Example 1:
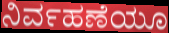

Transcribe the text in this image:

ನಿರ್ವಹಣೆಯೂ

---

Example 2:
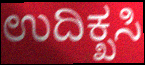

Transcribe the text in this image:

ಉದಿಕ್ಖಸಿ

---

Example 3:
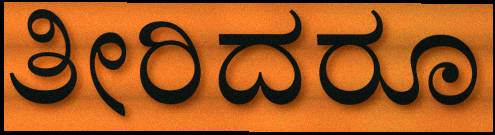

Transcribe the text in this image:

ತೀರಿದರೂ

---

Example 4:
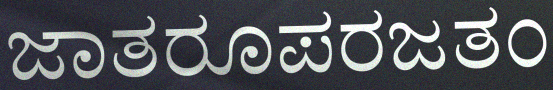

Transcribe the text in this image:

ಜಾತರೂಪರಜತಂ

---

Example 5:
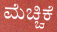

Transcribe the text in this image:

ಮೆಚ್ಚಿಕೆ